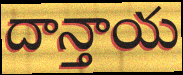
దాన్తాయ